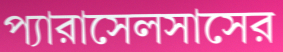
প্যারাসেলসাসের